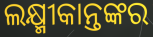
ଲକ୍ଷ୍ମୀକାନ୍ତଙ୍କର